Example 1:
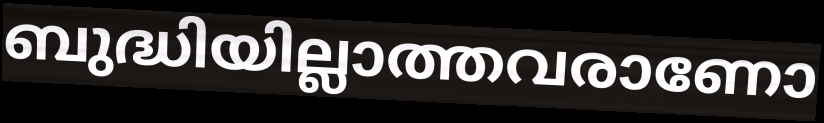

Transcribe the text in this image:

ബുദ്ധിയില്ലാത്തവരാണോ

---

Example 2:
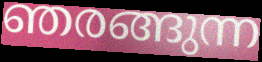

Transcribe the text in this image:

ഞരങ്ങുന്ന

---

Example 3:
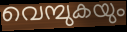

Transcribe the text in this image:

വെമ്പുകയും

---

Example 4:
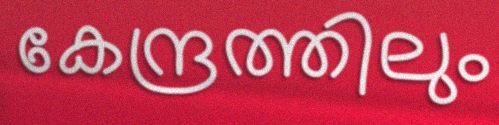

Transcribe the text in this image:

കേന്ദ്രത്തിലും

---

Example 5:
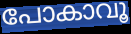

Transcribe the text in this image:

പോകാവൂ